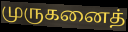
முருகனைத்